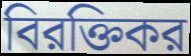
বিরক্তিকর